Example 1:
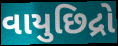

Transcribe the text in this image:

વાયુછિદ્રો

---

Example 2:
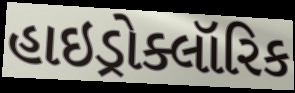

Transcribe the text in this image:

હાઇડ્રોક્લૉરિક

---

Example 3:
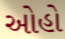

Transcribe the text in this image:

ઓહો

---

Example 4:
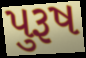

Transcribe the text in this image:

પુરૂષ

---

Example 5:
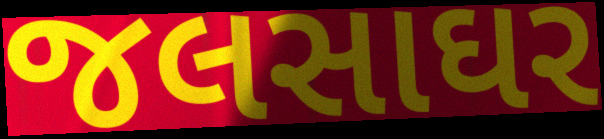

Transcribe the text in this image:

જલસાઘર